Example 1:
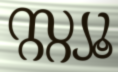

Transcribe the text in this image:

സ്റ്റ്യൂ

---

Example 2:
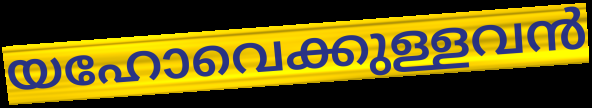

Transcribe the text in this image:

യഹോവെക്കുള്ളവൻ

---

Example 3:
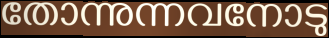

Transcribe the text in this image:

തോന്നുന്നവനോടു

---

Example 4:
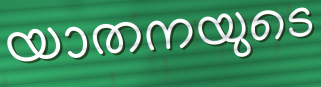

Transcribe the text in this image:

യാതനയുടെ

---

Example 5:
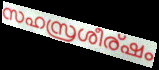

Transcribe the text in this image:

സഹസ്രശീര്ഷം